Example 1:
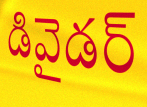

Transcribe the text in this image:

డివైడర్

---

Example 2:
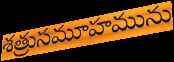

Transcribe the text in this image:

శత్రుసమూహమును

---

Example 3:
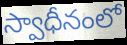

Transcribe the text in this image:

స్వాధీనంలో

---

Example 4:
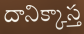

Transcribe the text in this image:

దానిక్కాస్త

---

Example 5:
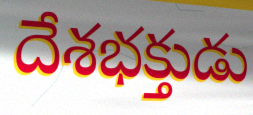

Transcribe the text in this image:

దేశభక్తుడు